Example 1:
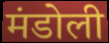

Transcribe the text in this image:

मंडोली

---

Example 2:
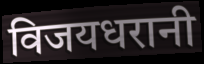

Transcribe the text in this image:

विजयधरानी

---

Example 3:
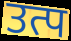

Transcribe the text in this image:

उत्प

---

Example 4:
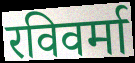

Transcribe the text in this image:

रविवर्मा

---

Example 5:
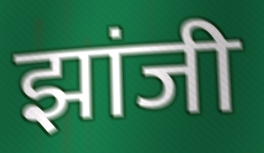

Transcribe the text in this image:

झांजी